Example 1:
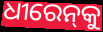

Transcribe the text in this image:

ଧୀରେନ୍‌କୁ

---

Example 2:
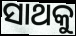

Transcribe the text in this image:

ସାଥକୁ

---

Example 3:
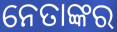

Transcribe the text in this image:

ନେତାଙ୍କର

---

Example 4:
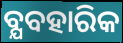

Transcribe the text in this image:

ବ୍ଯବହାରିକ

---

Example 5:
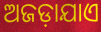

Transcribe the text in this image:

ଅଜଡ଼ାଯାଏ